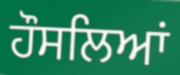
ਹੌਸਲਿਆਂ